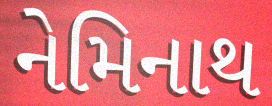
નેમિનાથ